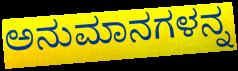
ಅನುಮಾನಗಳನ್ನ